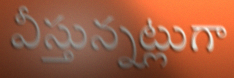
వీస్తున్నట్లుగా